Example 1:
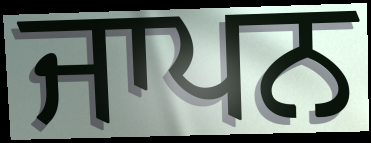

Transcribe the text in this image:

ਜਾਪਨ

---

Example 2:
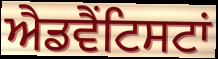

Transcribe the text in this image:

ਐਡਵੈਂਟਿਸਟਾਂ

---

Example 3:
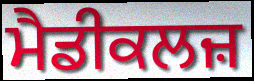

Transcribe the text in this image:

ਮੈਡੀਕਲਜ਼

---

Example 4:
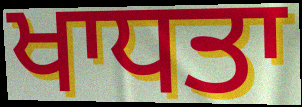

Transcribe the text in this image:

ਖਾਧਤਾ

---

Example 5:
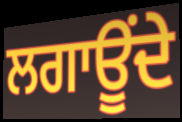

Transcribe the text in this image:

ਲਗਾਊਂਦੇ